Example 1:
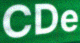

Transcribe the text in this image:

CDe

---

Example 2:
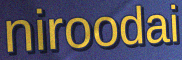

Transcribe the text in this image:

niroodai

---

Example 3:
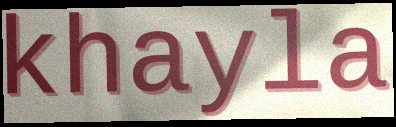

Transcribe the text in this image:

khayla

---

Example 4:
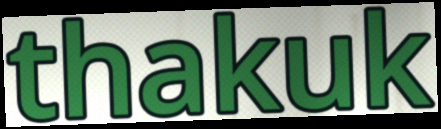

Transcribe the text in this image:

thakuk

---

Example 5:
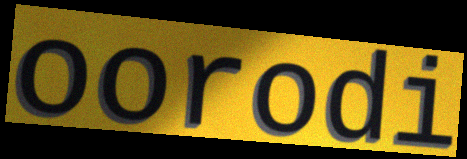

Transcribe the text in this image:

oorodi